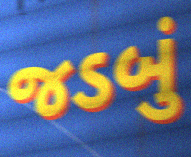
જડબું